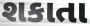
શકાતા